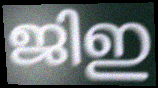
ജിഇ